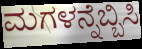
ಮಗಳನ್ನೆಬ್ಬಿಸಿ